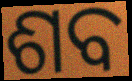
ଶବ